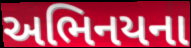
અભિનયના